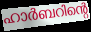
ഹാർബറിന്റെ